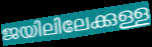
ജയിലിലേക്കുള്ള